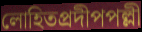
লোহিতপ্রদীপপল্লী